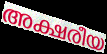
അക്ഷരീയ